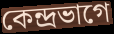
কেন্দ্রভাগে